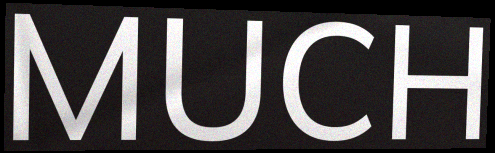
MUCH